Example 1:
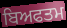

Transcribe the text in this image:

ਬਿਅਫਤਮ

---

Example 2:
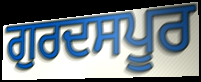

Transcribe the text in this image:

ਗੁਰਦਸਪੂਰ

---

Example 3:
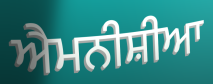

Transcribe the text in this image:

ਐਮਨੀਸ਼ੀਆ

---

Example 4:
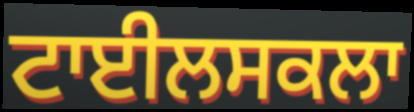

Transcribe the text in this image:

ਟਾਈਲਸਕਲਾ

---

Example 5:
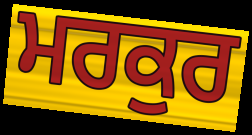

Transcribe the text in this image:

ਮਰਕੁਰ